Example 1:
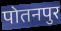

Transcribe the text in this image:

पोतनपुर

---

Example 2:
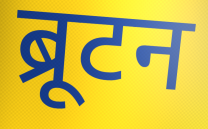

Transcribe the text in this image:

ब्रूटन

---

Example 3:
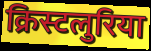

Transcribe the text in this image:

क्रिस्टलुरिया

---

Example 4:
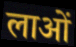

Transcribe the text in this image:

लाओं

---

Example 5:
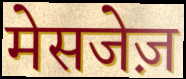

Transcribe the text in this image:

मेसजेज़